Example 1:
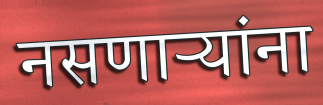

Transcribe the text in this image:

नसणाऱ्यांना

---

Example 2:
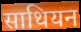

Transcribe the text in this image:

साथियन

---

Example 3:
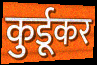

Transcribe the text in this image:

कुर्डूकर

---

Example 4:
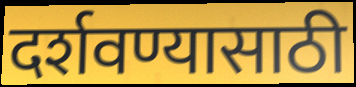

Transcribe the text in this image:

दर्शवण्यासाठी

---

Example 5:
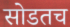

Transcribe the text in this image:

सोडतच